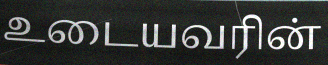
உடையவரின்